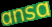
ansa